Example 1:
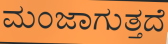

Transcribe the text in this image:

ಮಂಜಾಗುತ್ತದೆ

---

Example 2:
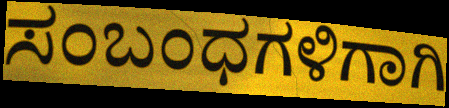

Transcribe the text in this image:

ಸಂಬಂಧಗಳಿಗಾಗಿ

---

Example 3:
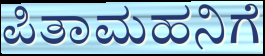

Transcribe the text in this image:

ಪಿತಾಮಹನಿಗೆ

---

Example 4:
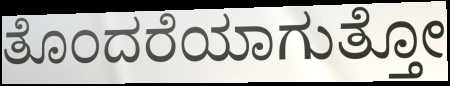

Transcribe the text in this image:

ತೊಂದರೆಯಾಗುತ್ತೋ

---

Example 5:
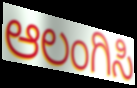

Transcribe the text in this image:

ಆಲಂಗಿಸಿ